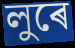
লুৰে